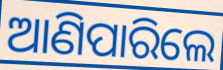
ଆଣିପାରିଲେ